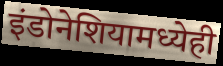
इंडोनेशियामध्येही